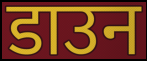
डाउन